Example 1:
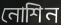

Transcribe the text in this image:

নোশিন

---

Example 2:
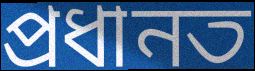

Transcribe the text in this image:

প্রধানত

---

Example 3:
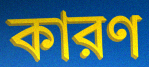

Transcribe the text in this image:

কারণ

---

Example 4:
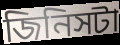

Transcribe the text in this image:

জিনিসটা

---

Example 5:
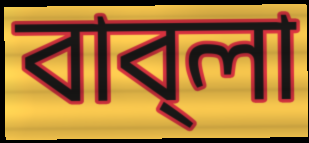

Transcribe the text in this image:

বাব্‌লা